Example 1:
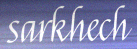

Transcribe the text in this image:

sarkhech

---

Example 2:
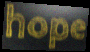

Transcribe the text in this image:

hope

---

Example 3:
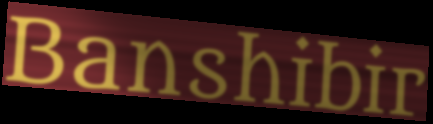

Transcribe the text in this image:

Banshibir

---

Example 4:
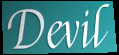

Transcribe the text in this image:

Devil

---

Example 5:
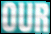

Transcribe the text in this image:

OUR